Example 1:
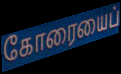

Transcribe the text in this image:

கோரையைப்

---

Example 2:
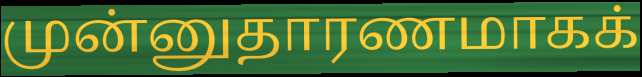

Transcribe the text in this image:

முன்னுதாரணமாகக்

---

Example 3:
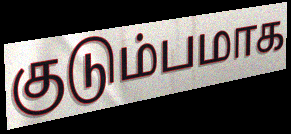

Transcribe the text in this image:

குடும்பமாக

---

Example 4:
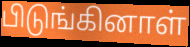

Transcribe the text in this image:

பிடுங்கினாள்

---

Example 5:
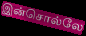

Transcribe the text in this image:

இன்சொல்லே